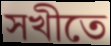
সখীতে